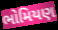
ભોમિયણ